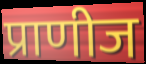
प्राणीज